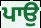
ਪਾਉ